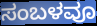
ಸಂಬಳವೂ